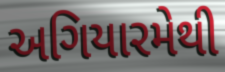
અગિયારમેથી